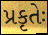
પ્રકૃતેઃ